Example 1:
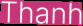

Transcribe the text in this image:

Thanh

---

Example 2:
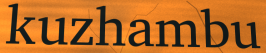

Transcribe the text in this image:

kuzhambu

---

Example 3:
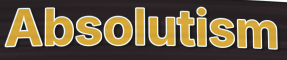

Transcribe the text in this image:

Absolutism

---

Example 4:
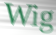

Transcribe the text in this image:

Wig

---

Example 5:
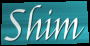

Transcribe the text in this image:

Shim